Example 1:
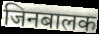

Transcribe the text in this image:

जिनबालक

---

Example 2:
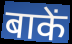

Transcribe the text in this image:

बाकें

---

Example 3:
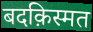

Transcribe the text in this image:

बदक़िस्मत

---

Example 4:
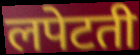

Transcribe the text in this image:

लपेटती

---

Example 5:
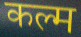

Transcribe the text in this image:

कल्म